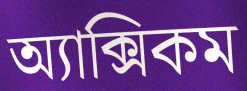
অ্যাক্সিকম